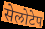
सेलोटेप